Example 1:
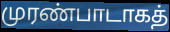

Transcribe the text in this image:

முரண்பாடாகத்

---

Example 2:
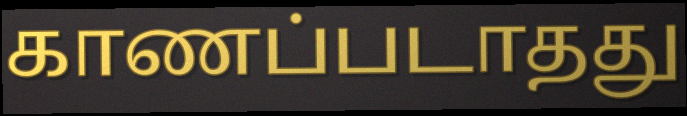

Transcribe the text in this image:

காணப்படாதது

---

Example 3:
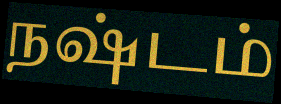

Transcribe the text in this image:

நஷ்டம்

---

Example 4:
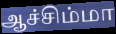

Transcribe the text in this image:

ஆச்சிம்மா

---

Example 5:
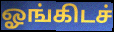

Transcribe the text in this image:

ஓங்கிடச்